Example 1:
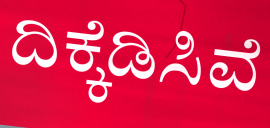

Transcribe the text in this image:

ದಿಕ್ಕೆಡಿಸಿವೆ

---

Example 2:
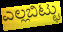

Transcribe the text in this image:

ಎಲ್ಲಬಿಟ್ಟು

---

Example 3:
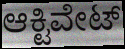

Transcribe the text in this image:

ಆಕ್ಟಿವೇಟ್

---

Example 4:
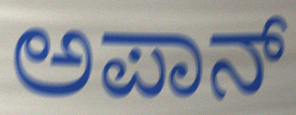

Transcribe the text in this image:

ಅಪಾನ್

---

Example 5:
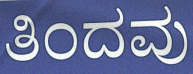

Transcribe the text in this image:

ತಿಂದವು